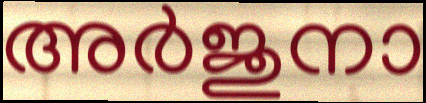
അർജുനാ